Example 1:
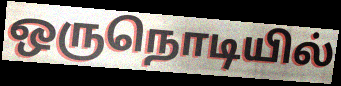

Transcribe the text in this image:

ஒருநொடியில்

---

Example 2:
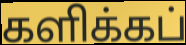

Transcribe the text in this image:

களிக்கப்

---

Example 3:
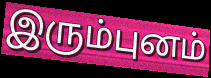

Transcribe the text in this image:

இரும்புனம்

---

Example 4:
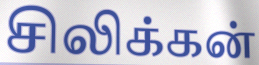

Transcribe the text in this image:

சிலிக்கன்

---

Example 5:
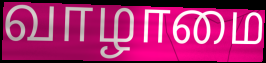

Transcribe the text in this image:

வாழாமை